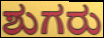
ಶುಗರು